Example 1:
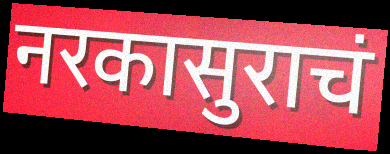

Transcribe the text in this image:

नरकासुराचं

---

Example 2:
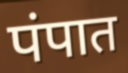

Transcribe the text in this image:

पंपात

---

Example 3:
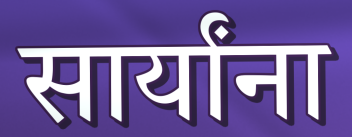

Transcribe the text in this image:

सार्यांना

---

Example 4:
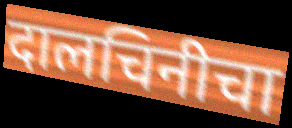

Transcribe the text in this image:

दालचिनीचा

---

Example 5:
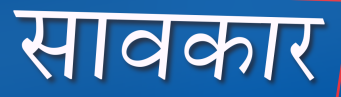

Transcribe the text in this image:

सावकार